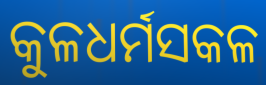
କୁଳଧର୍ମସକଳ